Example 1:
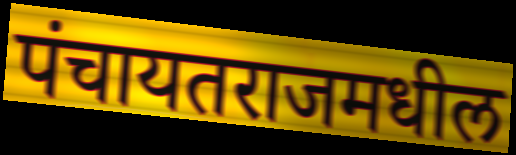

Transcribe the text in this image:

पंचायतराजमधील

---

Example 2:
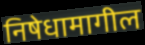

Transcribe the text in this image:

निषेधामागील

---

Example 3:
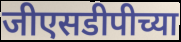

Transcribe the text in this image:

जीएसडीपीच्या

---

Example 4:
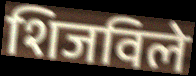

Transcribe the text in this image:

शिजविले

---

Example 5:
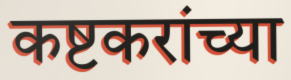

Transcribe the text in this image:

कष्टकरांच्या